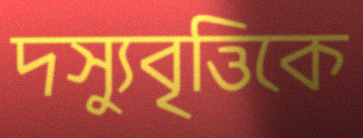
দস্যুবৃত্তিকে